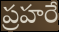
ప్రహరే